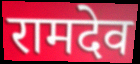
रामदेव